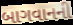
બાગવાનની